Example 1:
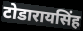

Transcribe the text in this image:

टोडारायसिंह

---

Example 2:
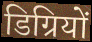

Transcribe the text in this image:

डिग्रियों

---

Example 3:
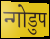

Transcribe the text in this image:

न्गोडुप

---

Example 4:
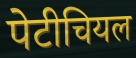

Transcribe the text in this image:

पेटीचियल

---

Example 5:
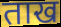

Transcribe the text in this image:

ताख